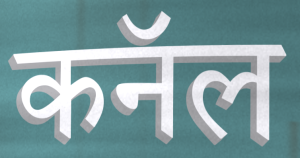
कनॅल